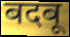
बदबू